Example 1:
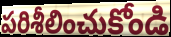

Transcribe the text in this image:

పరిశీలించుకోండి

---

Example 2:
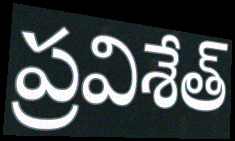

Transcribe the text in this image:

ప్రవిశేత్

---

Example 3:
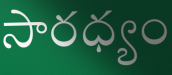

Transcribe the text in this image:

సారధ్యం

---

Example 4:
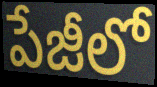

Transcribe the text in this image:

పేజీలో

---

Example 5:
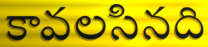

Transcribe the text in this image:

కావలసినది